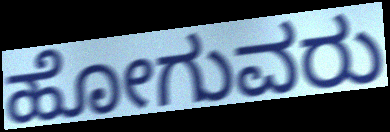
ಹೋಗುವರು